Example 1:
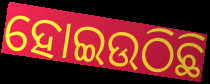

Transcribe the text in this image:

ହୋଇଉଠିଛି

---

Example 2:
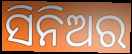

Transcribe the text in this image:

ସିନିଅର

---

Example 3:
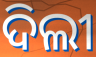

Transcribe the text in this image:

ଦିଲୀ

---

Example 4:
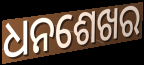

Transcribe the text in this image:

ଧନଶେଖର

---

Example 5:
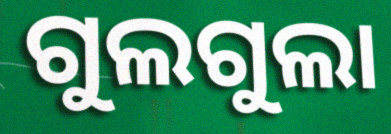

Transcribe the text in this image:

ଗୁଲଗୁଲା